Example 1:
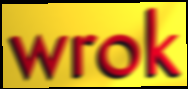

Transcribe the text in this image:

wrok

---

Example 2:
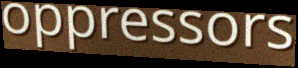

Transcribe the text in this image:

oppressors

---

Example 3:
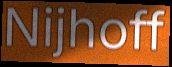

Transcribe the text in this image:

Nijhoff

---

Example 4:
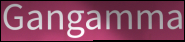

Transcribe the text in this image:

Gangamma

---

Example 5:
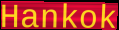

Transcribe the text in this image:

Hankok